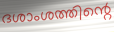
ദശാംശത്തിന്റെ